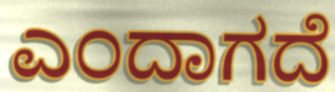
ಎಂದಾಗದೆ